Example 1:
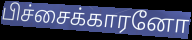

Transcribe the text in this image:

பிச்சைக்காரனோ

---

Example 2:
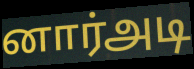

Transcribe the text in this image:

னார்அடி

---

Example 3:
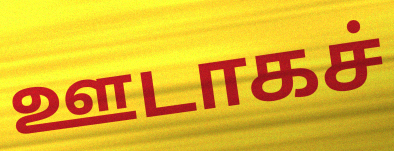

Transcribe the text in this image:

ஊடாகச்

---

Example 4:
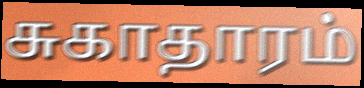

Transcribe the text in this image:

சுகாதாரம்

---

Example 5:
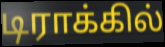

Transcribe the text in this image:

டிராக்கில்